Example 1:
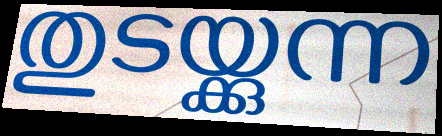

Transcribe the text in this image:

തുടയ്ക്കുന്ന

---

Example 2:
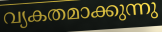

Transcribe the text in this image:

വ്യകതമാക്കുന്നു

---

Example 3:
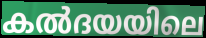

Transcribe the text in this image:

കൽദയയിലെ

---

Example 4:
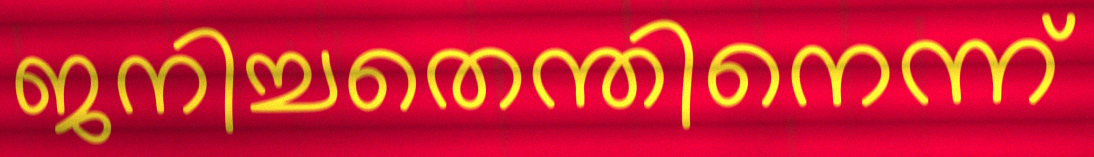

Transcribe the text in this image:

ജനിച്ചതെന്തിനെന്ന്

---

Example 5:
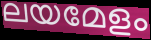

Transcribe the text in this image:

ലയമേളം